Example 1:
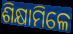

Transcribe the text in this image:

ଶିକ୍ଷାମିଳେ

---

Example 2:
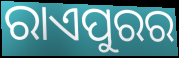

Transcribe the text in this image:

ରାଏପୁରର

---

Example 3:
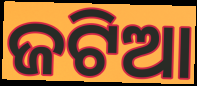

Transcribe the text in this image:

ଜଟିଆ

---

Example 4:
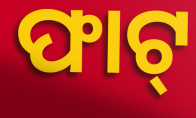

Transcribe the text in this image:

ଫାଟ୍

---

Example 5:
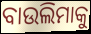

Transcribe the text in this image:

ବାଉଲିମାକୁ